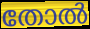
തോൽ